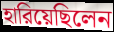
হারিয়েছিলেন